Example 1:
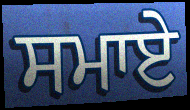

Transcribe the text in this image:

ਸਮਾਏ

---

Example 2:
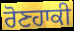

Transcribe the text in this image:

ਰੋਣਹਾਕੀ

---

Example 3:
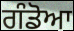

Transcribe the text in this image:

ਗੰਡੋਆ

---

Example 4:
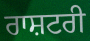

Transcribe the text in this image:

ਰਾਸ਼ਟਰੀ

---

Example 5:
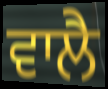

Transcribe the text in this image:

ਵਾਲੈ